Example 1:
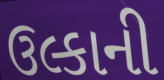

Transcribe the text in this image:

ઉલ્કાની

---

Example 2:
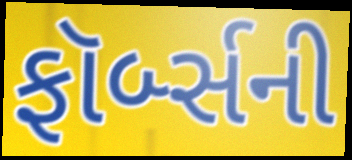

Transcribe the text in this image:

ફૉર્બ્સની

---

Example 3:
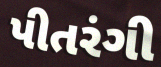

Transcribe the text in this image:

પીતરંગી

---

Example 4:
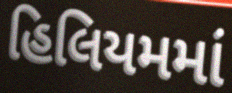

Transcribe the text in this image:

હિલિયમમાં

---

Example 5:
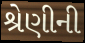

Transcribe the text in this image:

શ્રેણીની